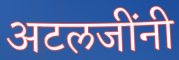
अटलजींनी